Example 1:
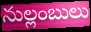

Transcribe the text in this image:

నుల్లంబులు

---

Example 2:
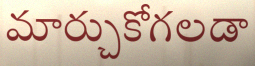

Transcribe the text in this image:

మార్చుకోగలడా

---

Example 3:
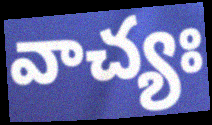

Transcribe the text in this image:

వాచ్యః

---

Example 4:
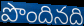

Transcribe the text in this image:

పొందినది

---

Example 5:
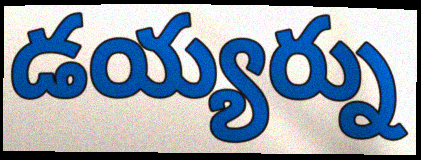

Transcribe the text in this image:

డయ్యర్ను